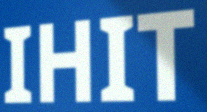
IHIT